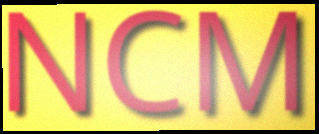
NCM